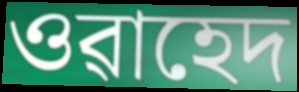
ওৱাহেদ